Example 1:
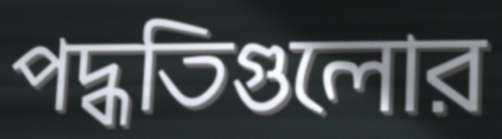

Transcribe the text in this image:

পদ্ধতিগুলোর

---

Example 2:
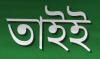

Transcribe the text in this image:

তাইই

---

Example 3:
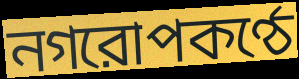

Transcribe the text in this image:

নগরোপকণ্ঠে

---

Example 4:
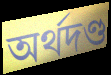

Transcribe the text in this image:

অর্থদণ্ড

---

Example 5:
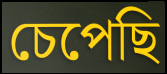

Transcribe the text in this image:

চেপেছি